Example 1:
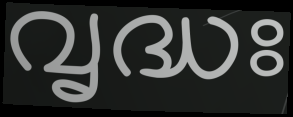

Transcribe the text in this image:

വൃദ്ധഃ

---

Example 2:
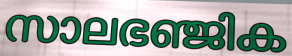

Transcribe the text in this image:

സാലഭഞ്ജിക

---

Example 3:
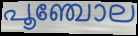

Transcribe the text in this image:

പൂഞ്ചോല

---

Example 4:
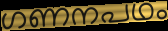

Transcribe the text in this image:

ഗണനപഥം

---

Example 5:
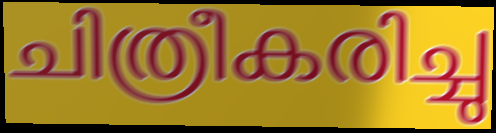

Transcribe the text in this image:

ചിത്രീകരിച്ചു